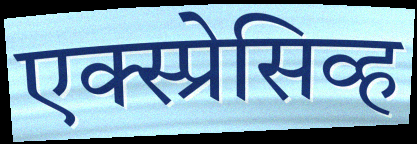
एक्स्प्रेसिव्ह